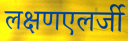
लक्षणएलर्जी